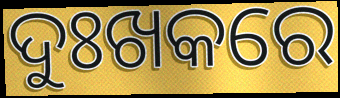
ଦୁଃଖକରେ